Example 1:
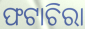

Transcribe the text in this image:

ଫଟାଚିରା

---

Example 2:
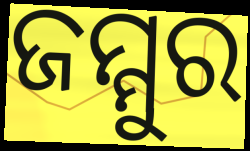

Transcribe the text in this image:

ଜମ୍ମୁର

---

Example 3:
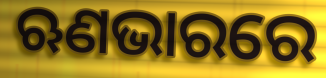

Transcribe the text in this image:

ଋଣଭାରରେ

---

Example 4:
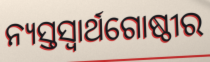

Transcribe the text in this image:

ନ୍ୟସ୍ତସ୍ୱାର୍ଥଗୋଷ୍ଠୀର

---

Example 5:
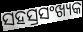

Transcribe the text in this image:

ସହସ୍ରସଂଖ୍ୟକ